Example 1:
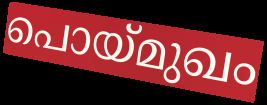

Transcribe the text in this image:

പൊയ്മുഖം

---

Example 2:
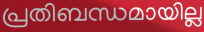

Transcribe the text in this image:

പ്രതിബന്ധമായില്ല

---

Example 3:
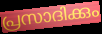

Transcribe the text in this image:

പ്രസാദിക്കും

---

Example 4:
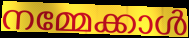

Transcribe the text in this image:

നമ്മേക്കാൾ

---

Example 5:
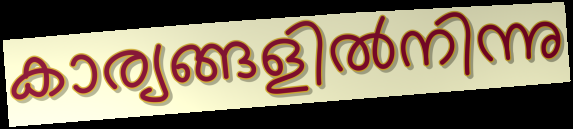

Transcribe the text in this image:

കാര്യങ്ങളിൽനിന്നു